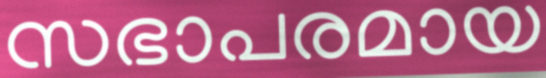
സഭാപരമായ